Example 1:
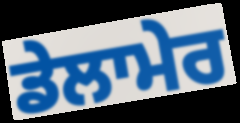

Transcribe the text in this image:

ਡੇਲਾਮੇਰ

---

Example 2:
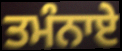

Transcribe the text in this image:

ਤਮੰਨਾਏ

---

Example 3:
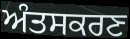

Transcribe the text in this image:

ਅੰਤਸਕਰਣ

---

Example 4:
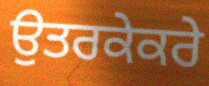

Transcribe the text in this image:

ਉਤਰਕੇਕਰੇ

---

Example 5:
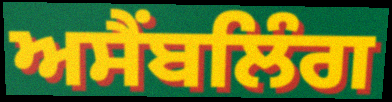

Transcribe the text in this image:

ਅਸੈਂਬਲਿੰਗ